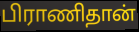
பிராணிதான்